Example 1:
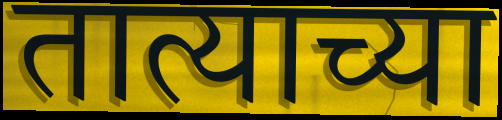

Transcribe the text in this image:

तात्याच्या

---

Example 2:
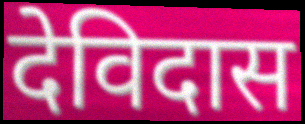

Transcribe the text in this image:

देविदास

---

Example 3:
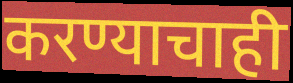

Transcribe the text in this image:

करण्याचाही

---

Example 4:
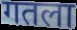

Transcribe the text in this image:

गतला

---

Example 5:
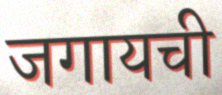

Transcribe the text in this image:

जगायची